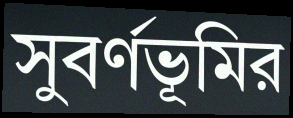
সুবর্ণভূমির